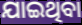
ଯାଇଥିବା